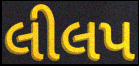
લીલપ